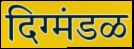
दिग्मंडळ